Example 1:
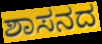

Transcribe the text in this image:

ಶಾಸನದ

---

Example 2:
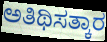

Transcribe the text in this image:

ಅತಿಥಿಸತ್ಕಾರ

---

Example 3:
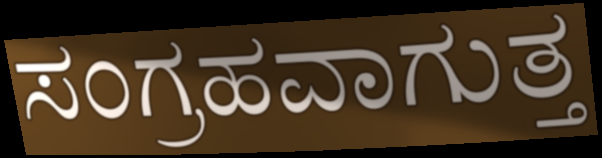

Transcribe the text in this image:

ಸಂಗ್ರಹವಾಗುತ್ತ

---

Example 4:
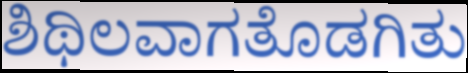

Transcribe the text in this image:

ಶಿಥಿಲವಾಗತೊಡಗಿತು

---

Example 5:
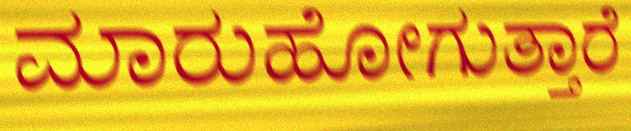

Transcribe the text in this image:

ಮಾರುಹೋಗುತ್ತಾರೆ